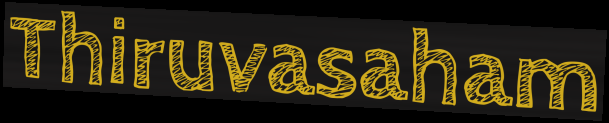
Thiruvasaham